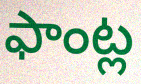
ఫాంట్ల